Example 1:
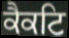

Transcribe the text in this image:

ਕੈਕਟਿ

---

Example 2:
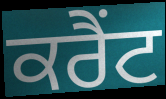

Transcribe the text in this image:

ਕਰੈਂਟ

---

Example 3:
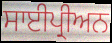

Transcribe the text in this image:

ਸਾਈਪ੍ਰੀਅਨ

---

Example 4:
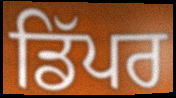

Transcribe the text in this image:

ਡਿੱਪਰ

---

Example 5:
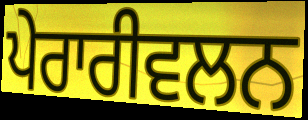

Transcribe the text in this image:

ਪੇਰਾਰੀਵਲਨ